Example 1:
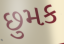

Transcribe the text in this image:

છુમક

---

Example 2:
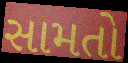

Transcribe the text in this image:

સામતો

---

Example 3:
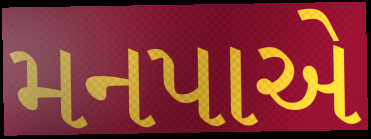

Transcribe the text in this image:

મનપાએ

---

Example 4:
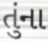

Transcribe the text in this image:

તુંના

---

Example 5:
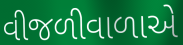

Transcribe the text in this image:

વીજળીવાળાએ